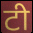
टी